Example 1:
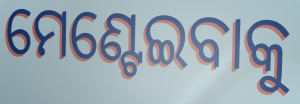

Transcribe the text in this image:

ମେଣ୍ଟେଇବାକୁ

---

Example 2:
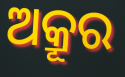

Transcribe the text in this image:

ଅକ୍ରୂର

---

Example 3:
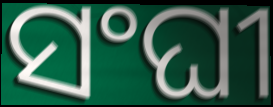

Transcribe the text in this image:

ସଂଘୀ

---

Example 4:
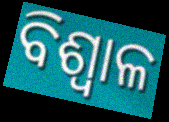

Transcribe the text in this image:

ବିଶ୍ୱାଳ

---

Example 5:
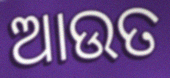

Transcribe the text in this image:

ଆଉତ